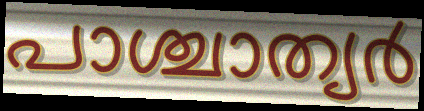
പാശ്ചാത്യർ